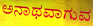
ಅನಾಥವಾಗುವ